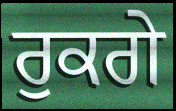
ਰੁਕਗੇ